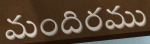
మందిరము